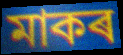
মাকৰ